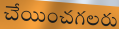
చేయించగలరు